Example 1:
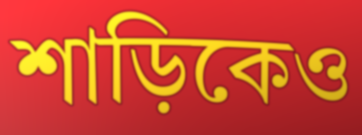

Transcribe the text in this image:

শাড়িকেও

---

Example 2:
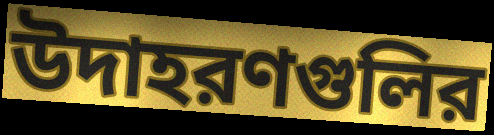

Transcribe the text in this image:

উদাহরণগুলির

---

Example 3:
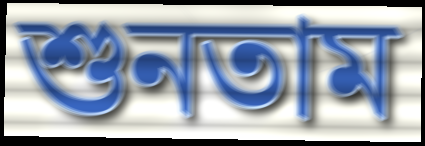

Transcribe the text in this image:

শুনতাম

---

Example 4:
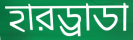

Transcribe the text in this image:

হারড্রাডা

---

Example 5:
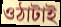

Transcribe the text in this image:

ওঠাটাই